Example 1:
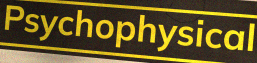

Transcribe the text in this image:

Psychophysical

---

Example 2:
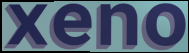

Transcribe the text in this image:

xeno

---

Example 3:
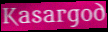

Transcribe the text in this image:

Kasargod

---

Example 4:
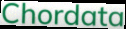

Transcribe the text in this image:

Chordata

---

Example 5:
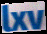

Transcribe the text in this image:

lxv